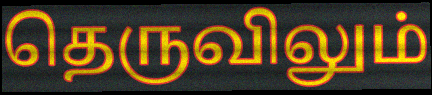
தெருவிலும்